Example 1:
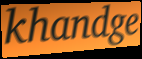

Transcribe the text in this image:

khandge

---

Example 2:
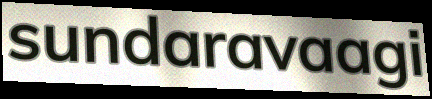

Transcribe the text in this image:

sundaravaagi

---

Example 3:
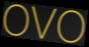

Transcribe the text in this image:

OVO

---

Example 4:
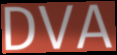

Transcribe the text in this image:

DVA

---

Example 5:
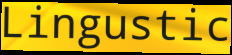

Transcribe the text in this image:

Lingustic